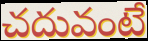
చదువంటే